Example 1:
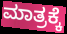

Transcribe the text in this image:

ಮಾತ್ರಕ್ಕೆ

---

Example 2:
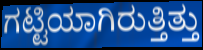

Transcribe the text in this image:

ಗಟ್ಟಿಯಾಗಿರುತ್ತಿತ್ತು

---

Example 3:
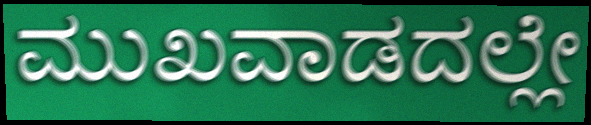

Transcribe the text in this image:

ಮುಖವಾಡದಲ್ಲೇ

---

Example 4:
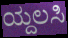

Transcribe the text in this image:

ಯ್ದಲಸಿ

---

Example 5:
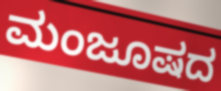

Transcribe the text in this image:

ಮಂಜೂಷದ